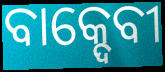
ବାକ୍ଦେବୀ